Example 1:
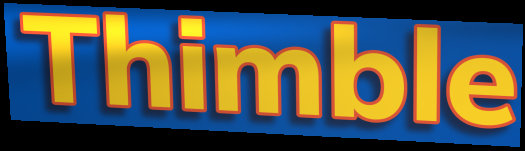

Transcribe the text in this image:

Thimble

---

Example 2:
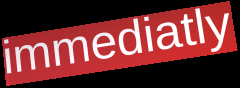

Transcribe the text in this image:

immediatly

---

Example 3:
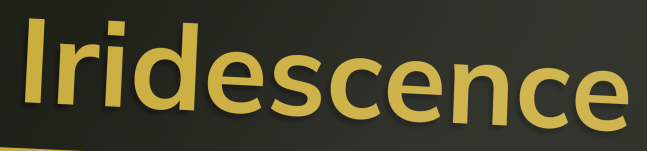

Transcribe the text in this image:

Iridescence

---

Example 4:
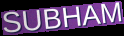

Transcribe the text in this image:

SUBHAM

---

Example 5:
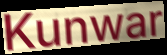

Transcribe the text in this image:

Kunwar